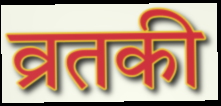
व्रतकी